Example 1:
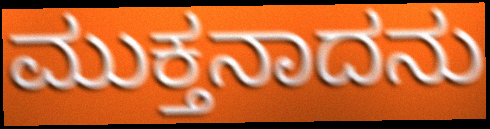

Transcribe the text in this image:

ಮುಕ್ತನಾದನು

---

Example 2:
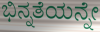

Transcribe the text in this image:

ಭಿನ್ನತೆಯನ್ನೇ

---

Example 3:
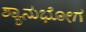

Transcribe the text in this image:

ಶ್ಯಾನುಭೋಗ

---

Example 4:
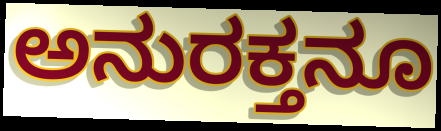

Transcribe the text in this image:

ಅನುರಕ್ತನೂ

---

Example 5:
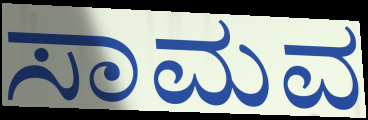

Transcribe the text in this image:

ಸಾಮವ